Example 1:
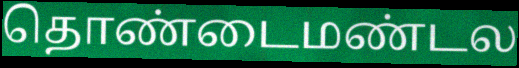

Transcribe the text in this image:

தொண்டைமண்டல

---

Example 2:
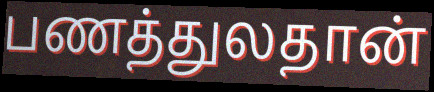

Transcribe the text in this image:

பணத்துலதான்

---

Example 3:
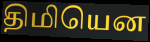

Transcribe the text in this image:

திமியென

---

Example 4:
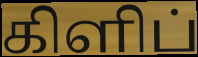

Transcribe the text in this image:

கிளிப்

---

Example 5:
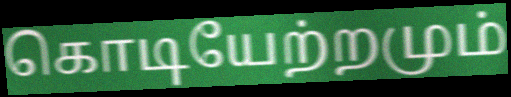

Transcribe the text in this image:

கொடியேற்றமும்